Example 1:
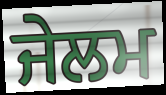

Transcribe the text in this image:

ਜੇਲਮ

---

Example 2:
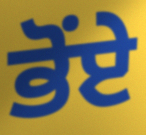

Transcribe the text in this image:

ਭੋਂਏ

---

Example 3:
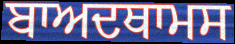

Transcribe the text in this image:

ਬਾਅਦਥਾਮਸ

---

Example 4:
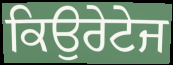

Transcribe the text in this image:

ਕਿਉਰੇਟੇਜ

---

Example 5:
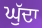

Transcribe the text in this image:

ਘੁੱਦਾ